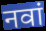
नवां